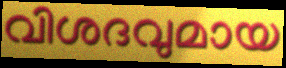
വിശദവുമായ